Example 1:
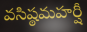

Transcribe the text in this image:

వసిష్ఠమహర్షీ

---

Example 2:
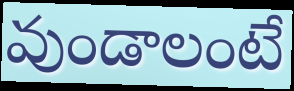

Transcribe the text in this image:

వుండాలంటే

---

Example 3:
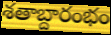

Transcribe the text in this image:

శతాబ్దారంభం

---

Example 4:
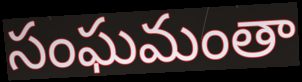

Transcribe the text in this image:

సంఘమంతా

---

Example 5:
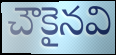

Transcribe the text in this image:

చౌకైనవి